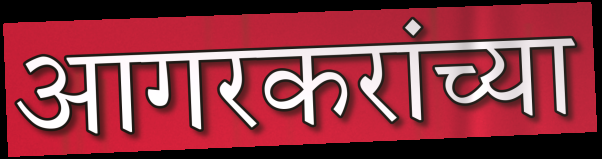
आगरकरांच्या